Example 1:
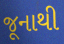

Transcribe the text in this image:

જૂનાથી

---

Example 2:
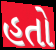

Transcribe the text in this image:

હતો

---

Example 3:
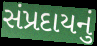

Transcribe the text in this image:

સંપ્રદાયનું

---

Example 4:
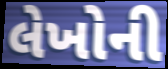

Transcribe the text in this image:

લેખોની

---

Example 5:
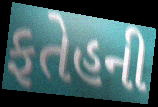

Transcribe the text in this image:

ફતેહની